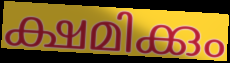
ക്ഷമിക്കും